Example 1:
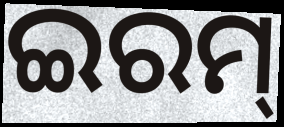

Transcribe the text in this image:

ଇରମ୍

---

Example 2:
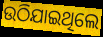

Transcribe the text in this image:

ଉଠିଯାଇଥିଲେ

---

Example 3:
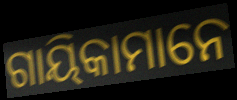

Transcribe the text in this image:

ଗାୟିକାମାନେ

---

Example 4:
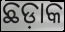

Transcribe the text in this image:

ଛଡ଼ାକ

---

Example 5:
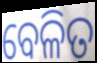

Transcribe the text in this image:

ବେଳିତ